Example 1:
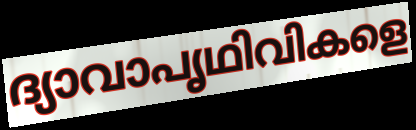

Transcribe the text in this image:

ദ്യാവാപൃഥിവികളെ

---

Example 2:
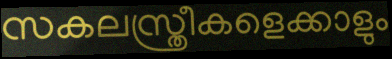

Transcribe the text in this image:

സകലസ്ത്രീകളെക്കാളും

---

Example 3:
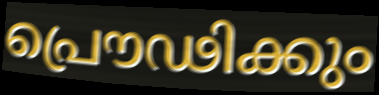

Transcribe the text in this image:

പ്രൌഢിക്കും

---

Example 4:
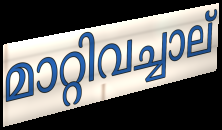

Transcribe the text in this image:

മാറ്റിവച്ചാല്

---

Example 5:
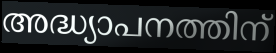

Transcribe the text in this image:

അദ്ധ്യാപനത്തിന്